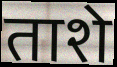
ताशे